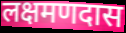
लक्षमणदास